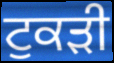
ਟੁਕਡ਼ੀ